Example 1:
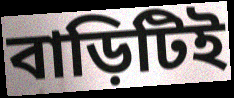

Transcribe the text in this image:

বাড়িটিই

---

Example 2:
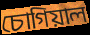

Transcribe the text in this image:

চোগিয়াল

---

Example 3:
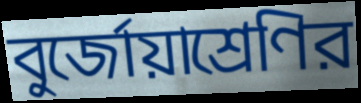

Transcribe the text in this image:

বুর্জোয়াশ্রেণির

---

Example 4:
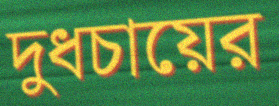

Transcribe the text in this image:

দুধচায়ের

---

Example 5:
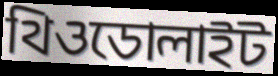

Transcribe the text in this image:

থিওডোলাইট